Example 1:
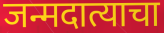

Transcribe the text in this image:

जन्मदात्याचा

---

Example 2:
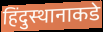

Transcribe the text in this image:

हिंदुस्थानाकडे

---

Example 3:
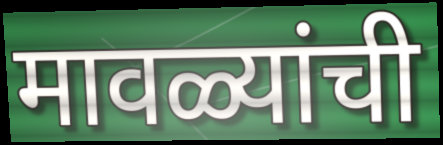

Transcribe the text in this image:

मावळ्यांची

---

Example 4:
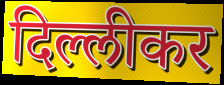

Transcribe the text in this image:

दिल्लीकर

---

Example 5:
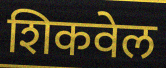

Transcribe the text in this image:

शिकवेल